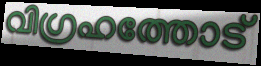
വിഗ്രഹത്തോട്